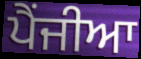
ਪੈਂਜੀਆ